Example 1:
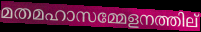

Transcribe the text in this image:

മതമഹാസമ്മേളനത്തില്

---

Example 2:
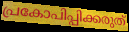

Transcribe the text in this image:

പ്രകോപിപ്പിക്കരുത്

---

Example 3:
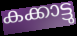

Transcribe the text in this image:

കക്കാട്ടു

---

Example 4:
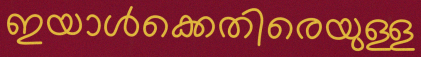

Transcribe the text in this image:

ഇയാൾക്കെതിരെയുള്ള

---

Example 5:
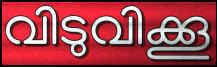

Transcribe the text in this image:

വിടുവിക്കൂ